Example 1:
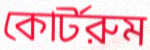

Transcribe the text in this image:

কোর্টরুম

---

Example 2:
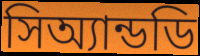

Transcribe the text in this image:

সিঅ্যান্ডডি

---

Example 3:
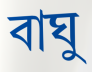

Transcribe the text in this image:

বাঘু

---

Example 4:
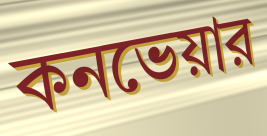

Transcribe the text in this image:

কনভেয়ার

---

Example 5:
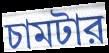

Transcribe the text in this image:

চামটার